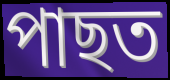
পাছত